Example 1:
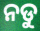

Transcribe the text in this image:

ନଡୁ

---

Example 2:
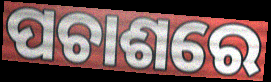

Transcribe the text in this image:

ପଚାଶରେ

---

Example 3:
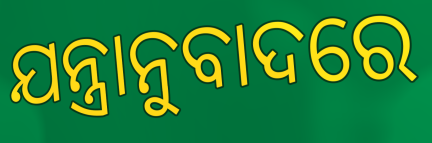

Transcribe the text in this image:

ଯନ୍ତ୍ରାନୁବାଦରେ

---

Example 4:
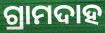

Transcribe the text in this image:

ଗ୍ରାମଦାହ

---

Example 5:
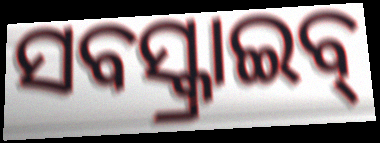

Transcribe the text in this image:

ସବସ୍କ୍ରାଇବ୍